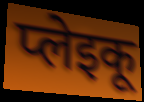
प्लेइकू